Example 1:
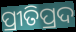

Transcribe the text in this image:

ପ୍ରୀତିପ୍ରଦ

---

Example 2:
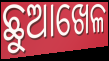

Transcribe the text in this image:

ଛୁଆଖେଳ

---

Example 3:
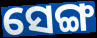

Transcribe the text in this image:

ସେଙ୍ଗ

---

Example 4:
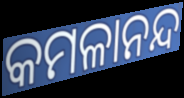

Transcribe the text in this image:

କମଳାନନ୍ଦ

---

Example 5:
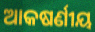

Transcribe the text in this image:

ଆକଷର୍ଣୀୟ